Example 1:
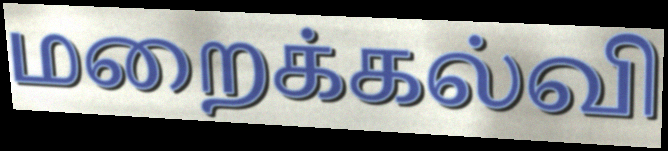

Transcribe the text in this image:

மறைக்கல்வி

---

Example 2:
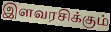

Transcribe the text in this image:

இளவரசிக்கும்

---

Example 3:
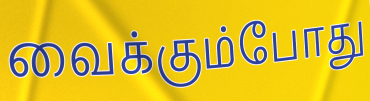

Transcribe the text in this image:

வைக்கும்போது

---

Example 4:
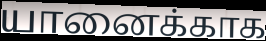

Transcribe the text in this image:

யானைக்காக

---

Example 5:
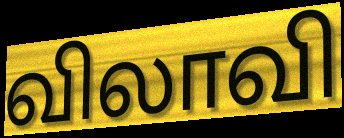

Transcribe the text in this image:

விலாவி